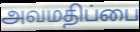
அவமதிப்பை